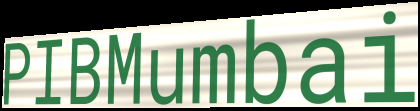
PIBMumbai